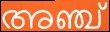
അഞ്ച്